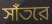
সাঁতরে